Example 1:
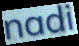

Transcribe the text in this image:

nadi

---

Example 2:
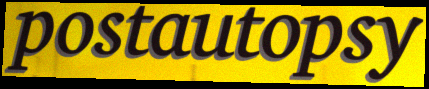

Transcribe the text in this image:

postautopsy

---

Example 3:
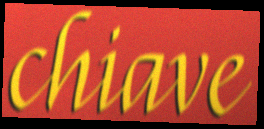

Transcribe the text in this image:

chiave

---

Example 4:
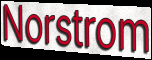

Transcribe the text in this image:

Norstrom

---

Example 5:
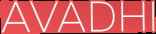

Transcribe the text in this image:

AVADHI